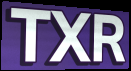
TXR